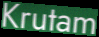
Krutam